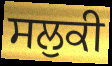
ਸਲੁਕੀ